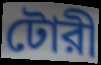
টোরী